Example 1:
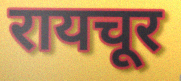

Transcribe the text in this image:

रायचूर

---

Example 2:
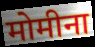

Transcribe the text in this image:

मोमीना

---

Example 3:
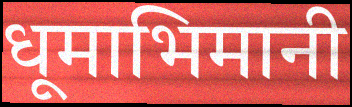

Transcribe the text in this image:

धूमाभिमानी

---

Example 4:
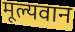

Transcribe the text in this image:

मूल्यवान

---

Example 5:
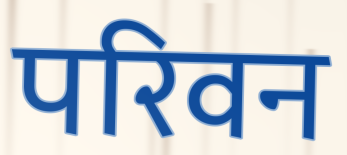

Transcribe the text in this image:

परिवन